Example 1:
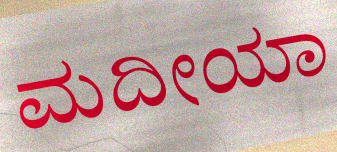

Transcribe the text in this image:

ಮದೀಯಾ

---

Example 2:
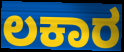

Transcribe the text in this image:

ಲಕಾರ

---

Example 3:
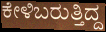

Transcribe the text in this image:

ಕೇಳಿಬರುತ್ತಿದ್ದ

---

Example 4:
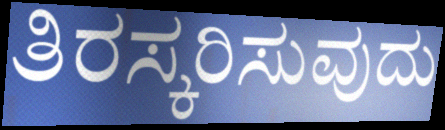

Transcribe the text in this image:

ತಿರಸ್ಕರಿಸುವುದು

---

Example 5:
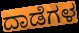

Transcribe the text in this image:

ದಾಡೆಗಳ